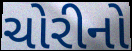
ચોરીનો